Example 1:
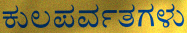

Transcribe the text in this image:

ಕುಲಪರ್ವತಗಳು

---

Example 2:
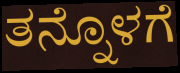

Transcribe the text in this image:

ತನ್ನೊಳಗೆ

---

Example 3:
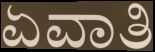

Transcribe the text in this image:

ಏವಾತಿ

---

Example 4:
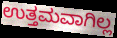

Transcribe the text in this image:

ಉತ್ತಮವಾಗಿಲ್ಲ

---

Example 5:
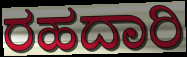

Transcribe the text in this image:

ರಹದಾರಿ